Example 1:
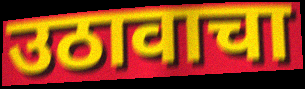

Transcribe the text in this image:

उठावाचा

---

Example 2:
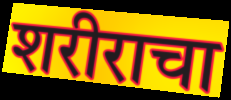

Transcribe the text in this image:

शरीराचा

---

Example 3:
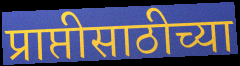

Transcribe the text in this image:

प्राप्तीसाठीच्या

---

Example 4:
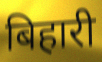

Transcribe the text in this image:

बिहारी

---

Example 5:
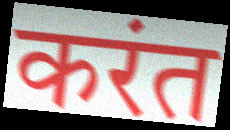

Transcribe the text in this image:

करंत